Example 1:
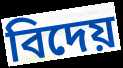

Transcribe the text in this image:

বিদেয়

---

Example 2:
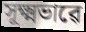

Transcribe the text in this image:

সূক্ষ্মভাৱে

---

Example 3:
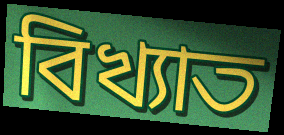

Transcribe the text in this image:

বিখ্যাত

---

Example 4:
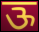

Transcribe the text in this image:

ক্ত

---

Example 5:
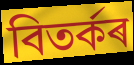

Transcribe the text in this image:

বিতৰ্কৰ